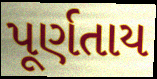
પૂર્ણતાય